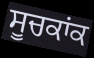
ਸੂਚਕਾਂਕ